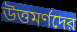
উত্তমর্ণদের